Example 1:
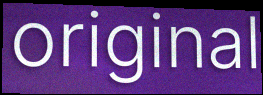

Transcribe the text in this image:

original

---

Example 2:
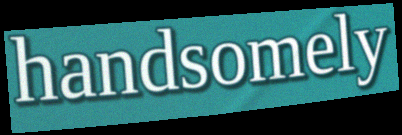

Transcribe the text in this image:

handsomely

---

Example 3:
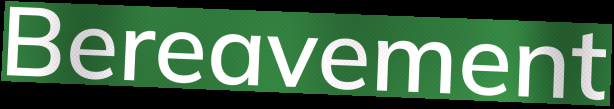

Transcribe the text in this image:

Bereavement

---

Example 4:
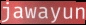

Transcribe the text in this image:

jawayun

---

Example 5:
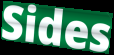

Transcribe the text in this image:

Sides